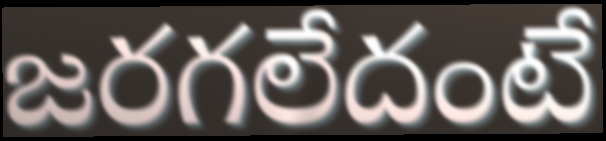
జరగలేదంటే